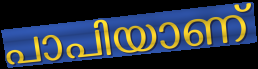
പാപിയാണ്